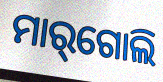
ମାର୍‌ଗୋଲି